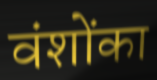
वंशोंका